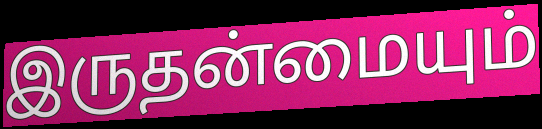
இருதன்மையும்